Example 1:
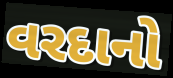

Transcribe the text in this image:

વરદાનો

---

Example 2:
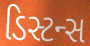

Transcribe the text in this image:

ડિસ્ટન્સ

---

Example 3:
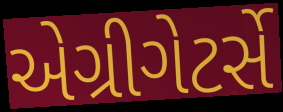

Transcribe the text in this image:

એગ્રીગેટર્સે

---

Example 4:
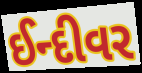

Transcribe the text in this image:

ઈન્દીવર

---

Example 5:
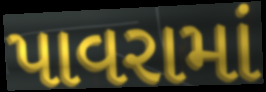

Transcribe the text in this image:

પાવરામાં